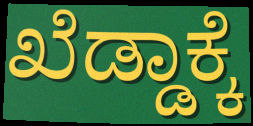
ಖೆಡ್ಡಾಕ್ಕೆ